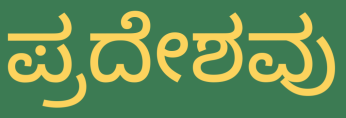
ಪ್ರದೇಶವು